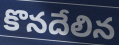
కొనదేలిన